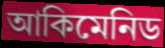
আকিমেনিড